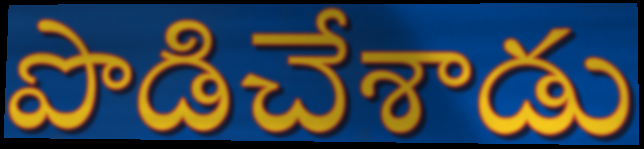
పొడిచేశాడు